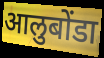
आलुबोंडा